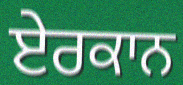
ਏਰਕਾਨ